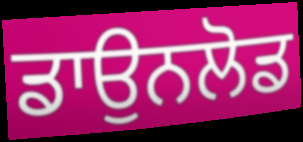
ਡਾਉਨਲੋਡ